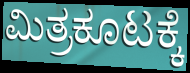
ಮಿತ್ರಕೂಟಕ್ಕೆ